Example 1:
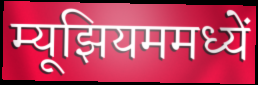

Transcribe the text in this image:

म्यूझियममध्यें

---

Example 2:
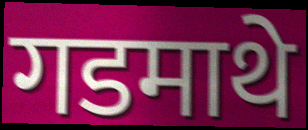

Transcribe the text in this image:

गडमाथे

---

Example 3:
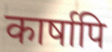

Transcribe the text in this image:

कार्षापि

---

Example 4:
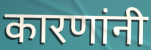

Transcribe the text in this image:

कारणांनी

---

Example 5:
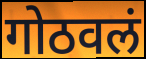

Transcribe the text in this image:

गोठवलं